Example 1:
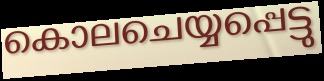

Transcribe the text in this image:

കൊലചെയ്യപ്പെട്ടു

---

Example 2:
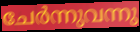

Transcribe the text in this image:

ചേർന്നുവന്നു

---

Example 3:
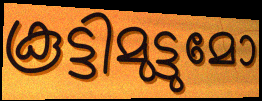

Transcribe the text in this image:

കൂട്ടിമുട്ടുമോ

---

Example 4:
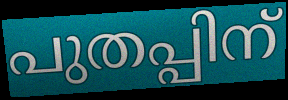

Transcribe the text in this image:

പുതപ്പിന്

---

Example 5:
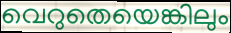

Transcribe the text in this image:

വെറുതെയെങ്കിലും